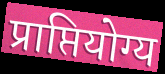
प्राप्तियोग्य